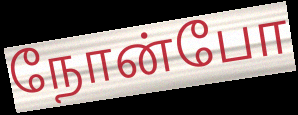
நோன்போ